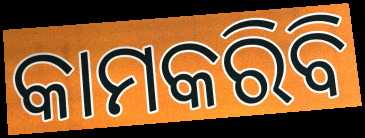
କାମକରିବି